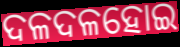
ଦଳଦଳହୋଇ